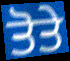
ਤੋਤੇ